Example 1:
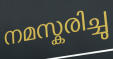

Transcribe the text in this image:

നമസ്കരിച്ചു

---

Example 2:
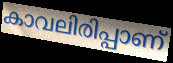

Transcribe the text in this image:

കാവലിരിപ്പാണ്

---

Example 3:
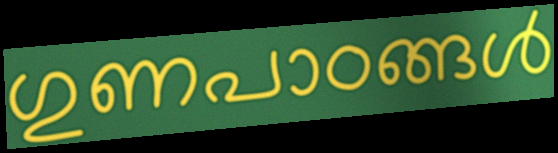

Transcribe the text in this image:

ഗുണപാഠങ്ങൾ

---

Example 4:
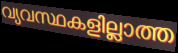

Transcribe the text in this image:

വ്യവസ്ഥകളില്ലാത്ത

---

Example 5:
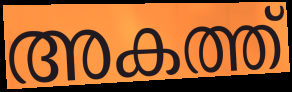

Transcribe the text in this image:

അകത്ത്